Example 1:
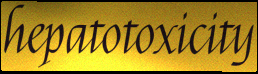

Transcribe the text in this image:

hepatotoxicity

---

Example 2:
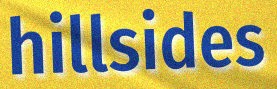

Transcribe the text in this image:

hillsides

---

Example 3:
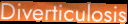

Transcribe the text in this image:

Diverticulosis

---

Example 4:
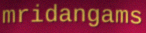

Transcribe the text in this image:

mridangams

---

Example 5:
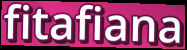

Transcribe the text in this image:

fitafiana